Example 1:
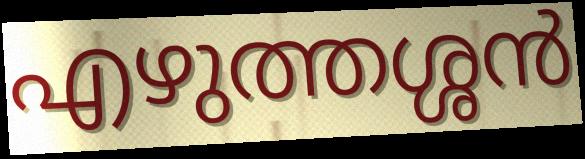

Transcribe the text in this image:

എഴുത്തശ്ശൻ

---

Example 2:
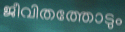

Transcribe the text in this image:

ജീവിതത്തോടും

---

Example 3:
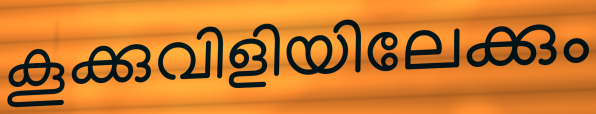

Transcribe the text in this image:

കൂക്കുവിളിയിലേക്കും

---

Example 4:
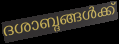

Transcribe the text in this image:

ദശാബ്ദങ്ങൾക്ക്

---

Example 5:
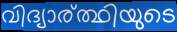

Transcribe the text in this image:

വിദ്യാര്ത്ഥിയുടെ